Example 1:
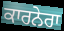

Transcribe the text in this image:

ਕਾਰਨੇਰਾ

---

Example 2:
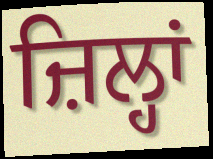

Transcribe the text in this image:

ਜ਼ਿਲ੍ਹਾਂ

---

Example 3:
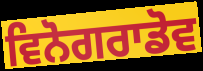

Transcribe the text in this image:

ਵਿਨੋਗਰਾਡੋਵ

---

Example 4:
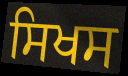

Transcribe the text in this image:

ਸਿਖਸ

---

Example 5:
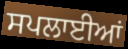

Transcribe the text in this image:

ਸਪਲਾਈਆਂ